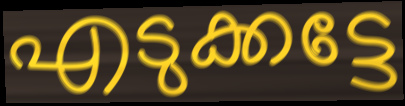
എടുക്കട്ടേ